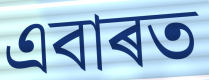
এবাৰত